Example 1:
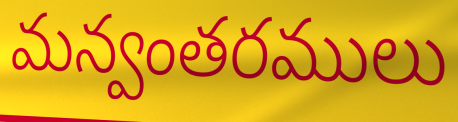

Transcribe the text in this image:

మన్వంతరములు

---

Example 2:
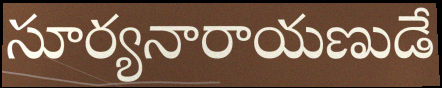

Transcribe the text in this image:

సూర్యనారాయణుడే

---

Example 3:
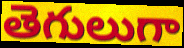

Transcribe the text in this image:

తెగులుగా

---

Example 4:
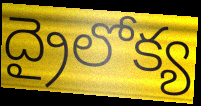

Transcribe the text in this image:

ద్రైలోక్య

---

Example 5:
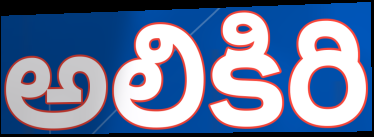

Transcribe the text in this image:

అలికిరి